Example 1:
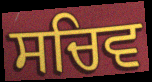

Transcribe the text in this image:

ਸਚਿਵ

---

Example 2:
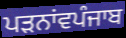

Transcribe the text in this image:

ਪੜਨਾਂਵਪੰਜਾਬ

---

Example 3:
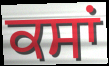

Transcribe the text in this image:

ਕਸਾਂ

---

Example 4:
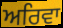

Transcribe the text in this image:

ਅਰਿਵਾ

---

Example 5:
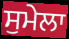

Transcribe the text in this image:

ਸੁਮੇਲਾ